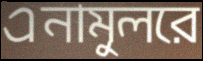
এনামুলরে